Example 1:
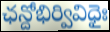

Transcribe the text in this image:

ఛన్దోభిర్వివిధైః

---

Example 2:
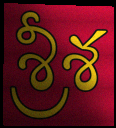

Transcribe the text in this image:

శ్రీశ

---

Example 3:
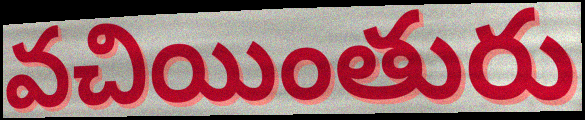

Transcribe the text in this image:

వచియింతురు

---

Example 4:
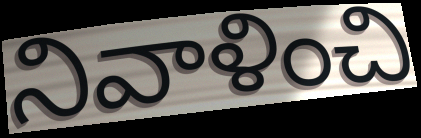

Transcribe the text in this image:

నివాళించి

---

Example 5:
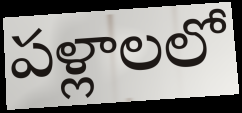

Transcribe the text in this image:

పళ్లాలలో